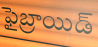
ఫైబ్రాయిడ్